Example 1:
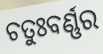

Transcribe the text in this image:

ଚତୁଃବର୍ଣ୍ଣର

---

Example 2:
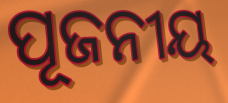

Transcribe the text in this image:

ପୂଜନୀୟ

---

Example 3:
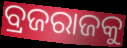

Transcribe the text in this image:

ବ୍ରଜରାଜକୁ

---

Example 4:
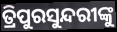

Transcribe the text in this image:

ତ୍ରିପୁରସୁନ୍ଦରୀଙ୍କୁ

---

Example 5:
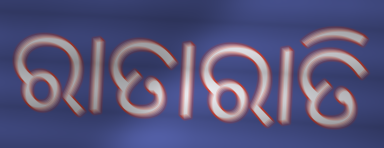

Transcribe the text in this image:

ରାତାରାତି